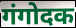
गंगोदक